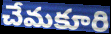
చేమకూరి